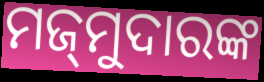
ମଜ୍‍ମୁଦାରଙ୍କ